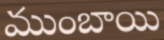
ముంబాయి